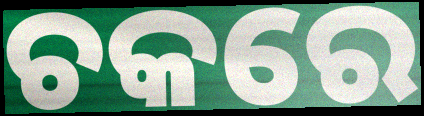
ଚକରେ